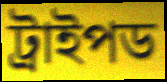
ট্রাইপড